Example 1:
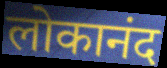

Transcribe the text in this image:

लोकानंद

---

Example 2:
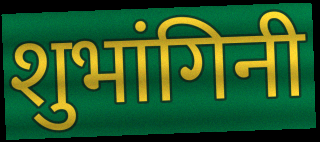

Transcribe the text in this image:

शुभांगिनी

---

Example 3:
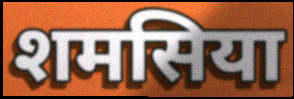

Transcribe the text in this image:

शमसिया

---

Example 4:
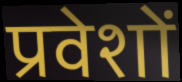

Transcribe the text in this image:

प्रवेशों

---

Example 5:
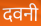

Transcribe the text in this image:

दवनी